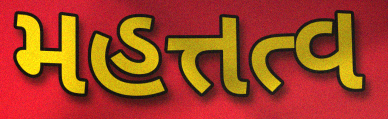
મહત્તત્વ